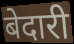
बेदारी